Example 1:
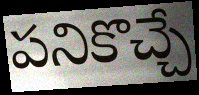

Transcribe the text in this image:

పనికొచ్చే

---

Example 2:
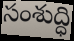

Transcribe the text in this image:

సంశుద్ధి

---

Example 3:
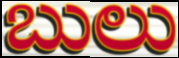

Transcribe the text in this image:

బులు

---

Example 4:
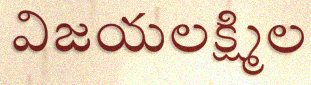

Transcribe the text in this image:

విజయలక్ష్మిల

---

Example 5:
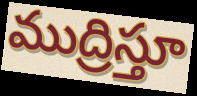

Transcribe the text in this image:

ముద్రిస్తూ